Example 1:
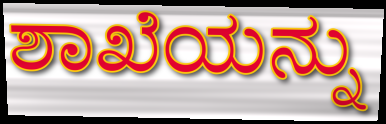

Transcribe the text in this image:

ಶಾಖೆಯನ್ನು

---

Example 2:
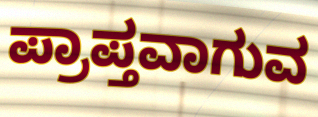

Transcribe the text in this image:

ಪ್ರಾಪ್ತವಾಗುವ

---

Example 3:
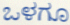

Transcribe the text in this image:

ಒಳಗೂ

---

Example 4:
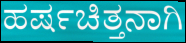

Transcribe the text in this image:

ಹರ್ಷಚಿತ್ತನಾಗಿ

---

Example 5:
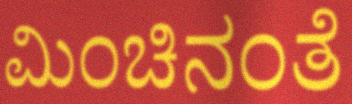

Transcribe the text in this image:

ಮಿಂಚಿನಂತೆ